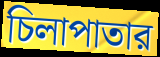
চিলাপাতার